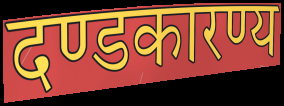
दण्डकारण्य